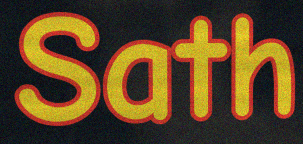
Sath